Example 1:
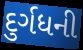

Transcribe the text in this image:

દુર્ગધની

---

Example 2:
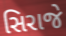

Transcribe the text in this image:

સિરાજે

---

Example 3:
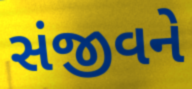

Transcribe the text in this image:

સંજીવને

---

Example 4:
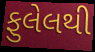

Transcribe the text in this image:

ફુલેલથી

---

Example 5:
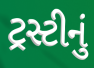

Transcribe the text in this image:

ટ્રસ્ટીનું